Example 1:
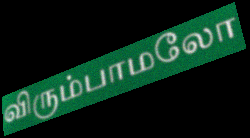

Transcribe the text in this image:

விரும்பாமலோ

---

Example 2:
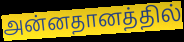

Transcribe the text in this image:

அன்னதானத்தில்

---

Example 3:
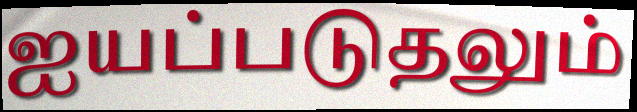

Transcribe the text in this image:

ஐயப்படுதலும்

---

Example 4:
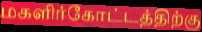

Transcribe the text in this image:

மகளிர்கோட்டத்திற்கு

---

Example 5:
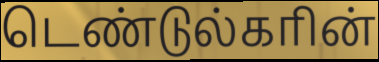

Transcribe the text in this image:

டெண்டுல்கரின்